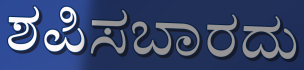
ಶಪಿಸಬಾರದು